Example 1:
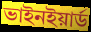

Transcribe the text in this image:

ভাইনইয়ার্ড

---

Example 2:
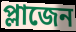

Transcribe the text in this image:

প্লাজেন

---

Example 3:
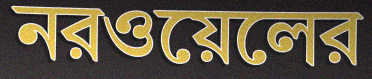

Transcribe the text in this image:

নরওয়েলের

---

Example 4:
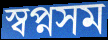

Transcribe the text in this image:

স্বপ্নসম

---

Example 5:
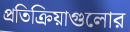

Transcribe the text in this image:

প্রতিক্রিয়াগুলোর